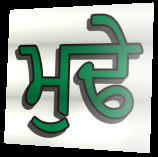
ਮੁਢੇ